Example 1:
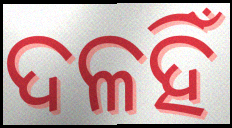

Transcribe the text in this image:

ଦଳହିଁ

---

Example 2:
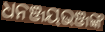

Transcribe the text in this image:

ଧନଞ୍ଜୟଭଞ୍ଜଙ୍କ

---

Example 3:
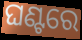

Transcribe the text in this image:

ଘଣ୍ଟରେ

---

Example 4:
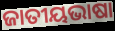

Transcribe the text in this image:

ଜାତୀୟଭାଷା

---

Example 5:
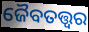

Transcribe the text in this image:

ଜୈବତତ୍ତ୍ୱର